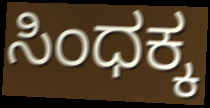
ಸಿಂಧಕ್ಕ